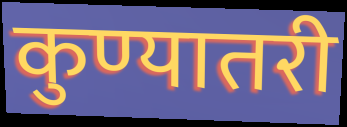
कुण्यातरी